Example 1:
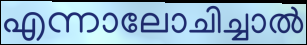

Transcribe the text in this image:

എന്നാലോചിച്ചാൽ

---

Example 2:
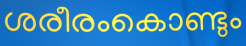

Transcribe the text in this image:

ശരീരംകൊണ്ടും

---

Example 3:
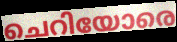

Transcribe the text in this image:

ചെറിയോരെ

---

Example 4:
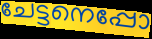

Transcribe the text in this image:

ചേട്ടനെപ്പോ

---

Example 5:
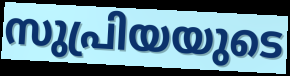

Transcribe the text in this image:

സുപ്രിയയുടെ